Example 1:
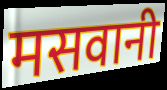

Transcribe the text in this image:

मसवानी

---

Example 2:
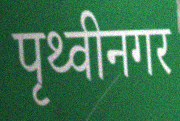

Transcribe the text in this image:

पृथ्वीनगर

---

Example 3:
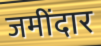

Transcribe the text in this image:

जमींदार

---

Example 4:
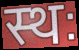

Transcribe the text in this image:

स्थः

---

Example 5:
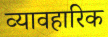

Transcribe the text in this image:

व्‍यावहारिक